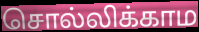
சொல்லிக்காம